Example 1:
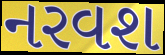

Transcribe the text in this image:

નરવશ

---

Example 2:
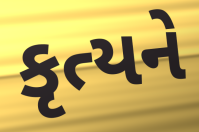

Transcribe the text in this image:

કૃત્યને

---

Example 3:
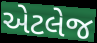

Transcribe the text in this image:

એટલેજ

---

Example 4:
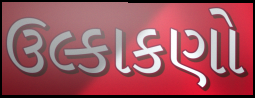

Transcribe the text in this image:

ઉલ્કાકણો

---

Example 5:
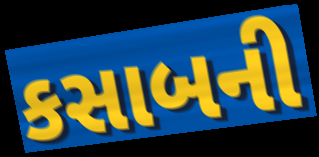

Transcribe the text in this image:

કસાબની